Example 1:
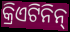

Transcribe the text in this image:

କ୍ରିଏଟିନିନ୍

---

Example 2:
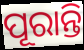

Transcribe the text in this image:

ପୂରାନ୍ତି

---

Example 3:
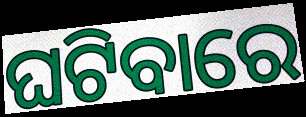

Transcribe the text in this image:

ଘଟିବାରେ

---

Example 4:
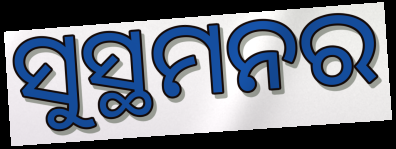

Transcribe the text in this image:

ସୁସ୍ଥମନର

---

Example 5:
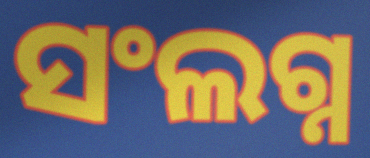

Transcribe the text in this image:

ସଂଲଗ୍ନ